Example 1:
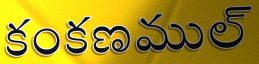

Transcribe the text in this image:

కంకణముల్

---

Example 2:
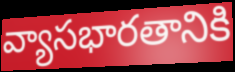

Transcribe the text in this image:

వ్యాసభారతానికి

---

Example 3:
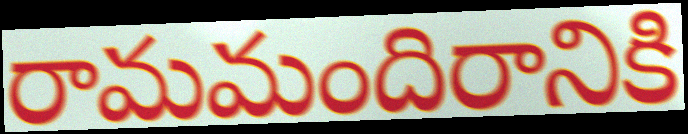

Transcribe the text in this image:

రామమందిరానికి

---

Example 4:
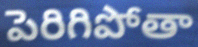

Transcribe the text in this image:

పెరిగిపోతా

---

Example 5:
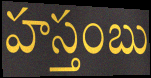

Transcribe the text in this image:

హస్తంబు